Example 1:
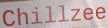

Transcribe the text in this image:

Chillzee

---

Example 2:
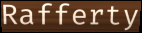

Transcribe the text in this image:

Rafferty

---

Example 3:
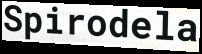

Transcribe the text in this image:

Spirodela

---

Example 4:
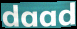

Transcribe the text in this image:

daad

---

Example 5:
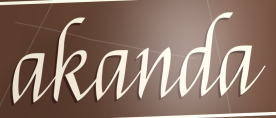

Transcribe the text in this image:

akanda